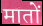
मातों